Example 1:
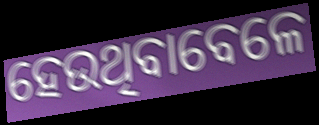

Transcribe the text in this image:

ହେଉଥିବାବେଳେ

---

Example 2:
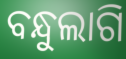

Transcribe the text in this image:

ବନ୍ଧୁଲାଗି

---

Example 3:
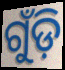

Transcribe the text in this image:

ଗୁଁଡ଼ି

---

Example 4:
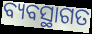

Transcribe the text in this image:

ବ୍ୟବସ୍ଥାଗତ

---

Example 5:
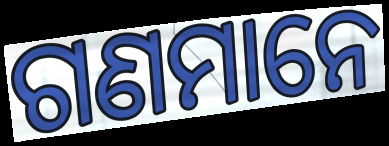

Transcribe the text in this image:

ଗଣମାନେ